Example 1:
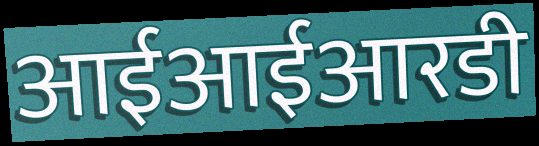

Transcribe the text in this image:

आईआईआरडी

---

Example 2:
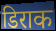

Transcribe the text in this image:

डिराक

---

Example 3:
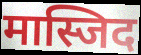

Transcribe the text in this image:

मास्जिद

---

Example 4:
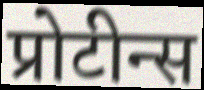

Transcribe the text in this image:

प्रोटीन्स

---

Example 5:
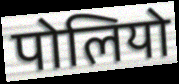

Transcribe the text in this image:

पोलियो